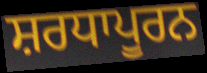
ਸ਼ਰਧਾਪੂਰਨ